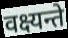
वक्ष्यन्ते